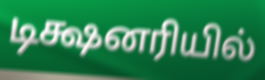
டிக்ஷனரியில்